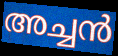
അച്ചൻ